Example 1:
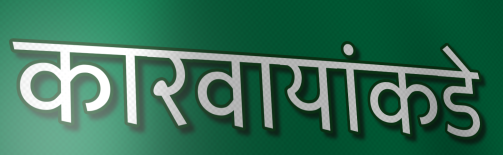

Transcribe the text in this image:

कारवायांकडे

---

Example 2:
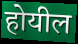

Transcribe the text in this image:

होयील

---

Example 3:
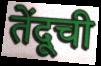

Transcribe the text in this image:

तेंदूची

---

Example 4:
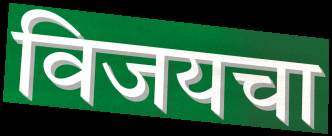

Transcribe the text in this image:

विजयचा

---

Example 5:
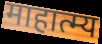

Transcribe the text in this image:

माहात्म्य